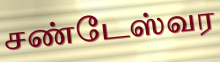
சண்டேஸ்வர